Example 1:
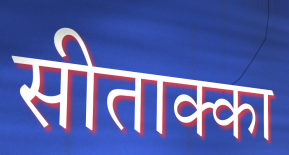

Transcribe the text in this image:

सीताक्का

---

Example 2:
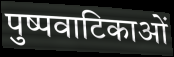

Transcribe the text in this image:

पुष्पवाटिकाओं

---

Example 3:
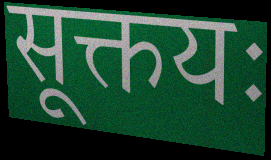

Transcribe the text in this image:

सूक्तयः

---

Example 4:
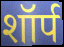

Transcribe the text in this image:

शॉर्प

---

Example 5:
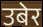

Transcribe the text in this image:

उबेर